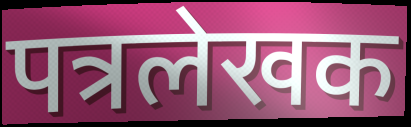
पत्रलेखक